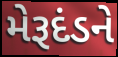
મેરૂદંડને